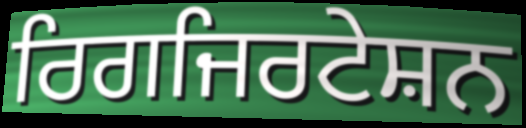
ਰਿਗਜਿਰਟੇਸ਼ਨ